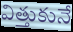
విత్తుకునే